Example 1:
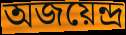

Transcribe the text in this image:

অজয়েন্দ্র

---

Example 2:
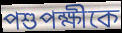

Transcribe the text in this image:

পশুপক্ষীকে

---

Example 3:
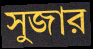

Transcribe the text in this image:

সুজার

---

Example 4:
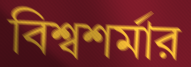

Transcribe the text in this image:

বিশ্বশর্মার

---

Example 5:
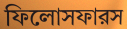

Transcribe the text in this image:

ফিলোসফারস